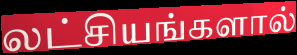
லட்சியங்களால்